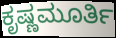
ಕೃಷ್ಣಮೂರ್ತಿ